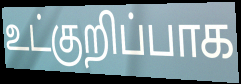
உட்குறிப்பாக